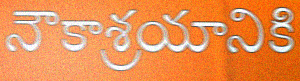
నౌకాశ్రయానికి